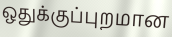
ஒதுக்குப்புறமான